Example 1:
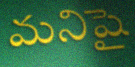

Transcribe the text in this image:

మనిషై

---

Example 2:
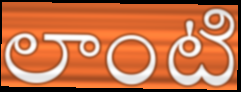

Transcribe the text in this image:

లాంటి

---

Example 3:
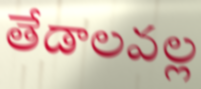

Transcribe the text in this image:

తేడాలవల్ల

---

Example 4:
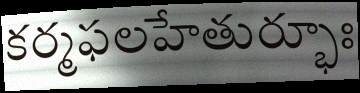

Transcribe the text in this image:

కర్మఫలహేతుర్భూః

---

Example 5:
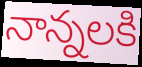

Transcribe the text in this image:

నాన్నలకి